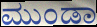
ಮುಂಡಾ